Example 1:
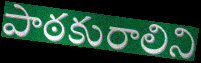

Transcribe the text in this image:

పాఠకురాలిని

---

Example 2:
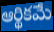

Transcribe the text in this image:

ఆర్థికమే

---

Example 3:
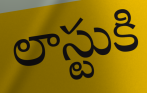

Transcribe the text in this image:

లాస్టుకి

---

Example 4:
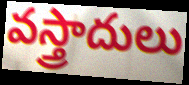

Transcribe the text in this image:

వస్త్రాదులు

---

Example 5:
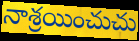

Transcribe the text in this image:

నాశ్రయించుచు